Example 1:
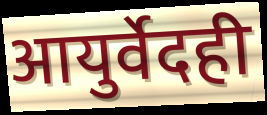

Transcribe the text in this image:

आयुर्वेदही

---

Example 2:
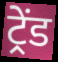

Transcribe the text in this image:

ट्रेंड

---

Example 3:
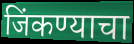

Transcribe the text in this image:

जिंकण्याचा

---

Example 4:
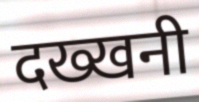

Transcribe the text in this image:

दख्खनी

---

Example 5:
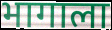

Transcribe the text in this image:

भागाला